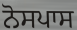
ਨੋਸਪਾਸ